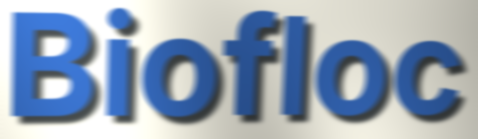
Biofloc